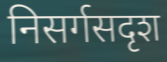
निसर्गसदृश